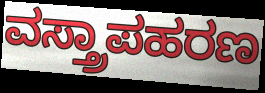
ವಸ್ತ್ರಾಪಹರಣ